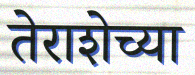
तेराशेच्या